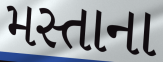
મસ્તાના